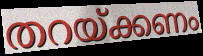
തറയ്ക്കണം